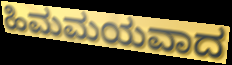
ಹಿಮಮಯವಾದ